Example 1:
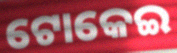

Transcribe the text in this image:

ଟୋକେଇ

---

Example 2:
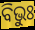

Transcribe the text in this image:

ବିଭୁଃ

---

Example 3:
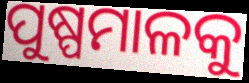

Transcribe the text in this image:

ପୁଷ୍ପମାଳକୁ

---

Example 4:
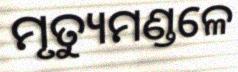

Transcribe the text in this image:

ମୃତ୍ୟୁମଣ୍ଡଳେ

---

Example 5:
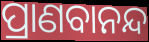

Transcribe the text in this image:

ପ୍ରାଣବାନନ୍ଦ